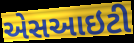
એસઆઇટી